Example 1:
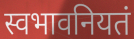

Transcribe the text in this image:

स्वभावनियतं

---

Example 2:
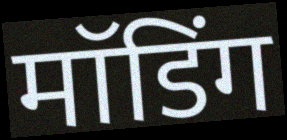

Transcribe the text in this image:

मॉडिंग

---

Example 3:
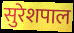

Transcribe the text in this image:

सुरेशपाल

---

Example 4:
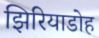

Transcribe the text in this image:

झिरियाडोह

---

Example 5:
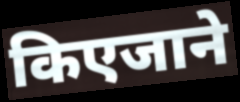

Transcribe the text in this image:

किएजाने